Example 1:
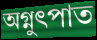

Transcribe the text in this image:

অগ্নুৎপাত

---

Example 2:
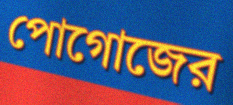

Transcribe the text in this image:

পোগোজের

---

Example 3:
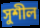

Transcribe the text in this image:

সুশীল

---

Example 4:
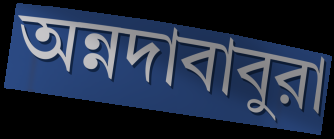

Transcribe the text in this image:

অন্নদাবাবুরা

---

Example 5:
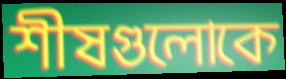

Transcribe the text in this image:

শীষগুলোকে